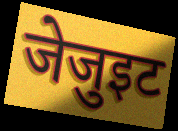
जेजुइट